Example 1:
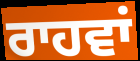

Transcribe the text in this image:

ਰਾਹਵਾਂ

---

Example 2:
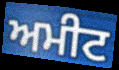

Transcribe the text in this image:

ਅਮੀਟ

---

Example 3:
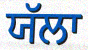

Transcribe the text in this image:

ਯੱਲਾ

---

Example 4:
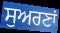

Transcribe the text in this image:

ਸੁਅਰਣਾਂ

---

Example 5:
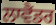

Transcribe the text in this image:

ਲਾਵੈਂਡਰ